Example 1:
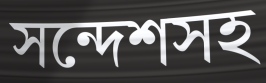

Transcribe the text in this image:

সন্দেশসহ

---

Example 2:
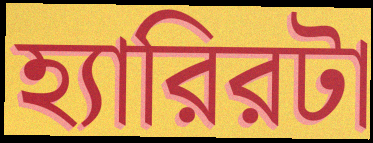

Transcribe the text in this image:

হ্যারিরটা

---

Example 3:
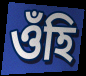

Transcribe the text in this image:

ওঁহি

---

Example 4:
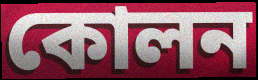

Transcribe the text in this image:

কোলন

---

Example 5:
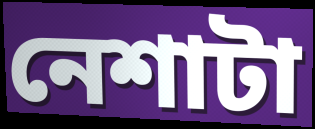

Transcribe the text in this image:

নেশাটা